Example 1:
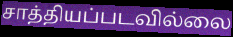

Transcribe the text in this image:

சாத்தியப்படவில்லை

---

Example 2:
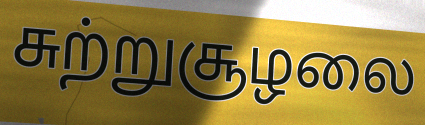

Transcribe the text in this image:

சுற்றுசூழலை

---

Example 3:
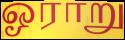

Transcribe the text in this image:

ஓராறு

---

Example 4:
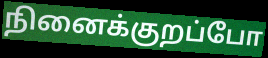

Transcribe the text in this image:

நினைக்குறப்போ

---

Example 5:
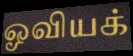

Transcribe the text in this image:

ஓவியக்